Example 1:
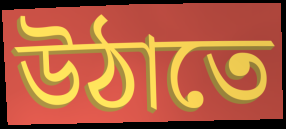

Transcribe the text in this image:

উঠাতে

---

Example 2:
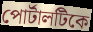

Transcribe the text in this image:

পোর্টালটিকে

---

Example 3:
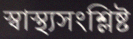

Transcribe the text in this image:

স্বাস্থ্যসংশ্লিষ্ট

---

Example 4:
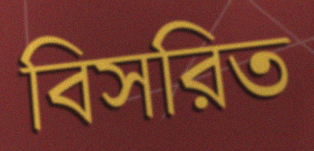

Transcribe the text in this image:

বিসরিত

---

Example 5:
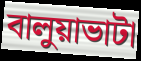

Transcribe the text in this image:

বালুয়াভাটা